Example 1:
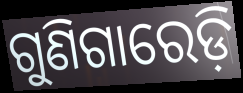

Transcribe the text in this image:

ଗୁଣିଗାରେଡ଼ି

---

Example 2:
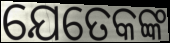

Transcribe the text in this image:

ଯେତେକଙ୍କ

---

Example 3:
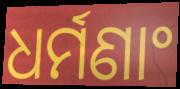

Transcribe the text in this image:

ଧର୍ମଣାଂ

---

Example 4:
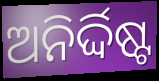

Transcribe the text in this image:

ଅନିର୍ଦ୍ଦିଷ୍ଟ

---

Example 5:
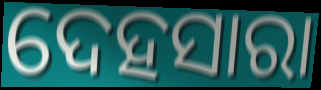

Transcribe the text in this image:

ଦେହସାରା